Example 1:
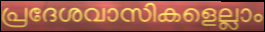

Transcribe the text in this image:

പ്രദേശവാസികളെല്ലാം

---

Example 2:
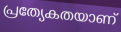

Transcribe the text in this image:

പ്രത്യേകതയാണ്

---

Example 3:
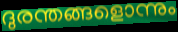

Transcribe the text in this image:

ദുരന്തങ്ങളൊന്നും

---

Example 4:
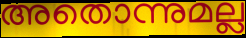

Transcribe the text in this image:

അതൊന്നുമല്ല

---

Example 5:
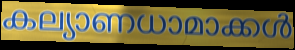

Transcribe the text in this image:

കല്യാണധാമാക്കൾ